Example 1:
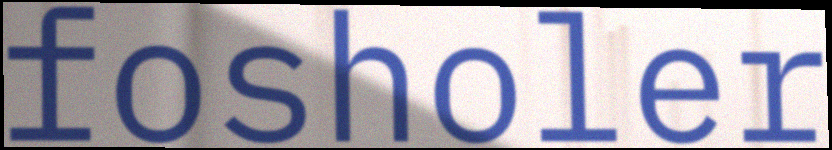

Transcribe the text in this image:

fosholer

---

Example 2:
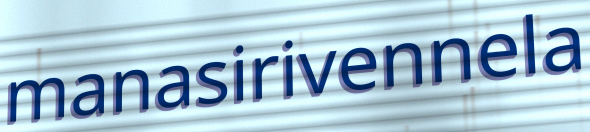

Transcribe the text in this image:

manasirivennela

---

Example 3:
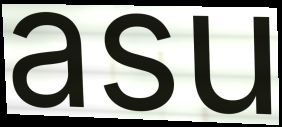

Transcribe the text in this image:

asu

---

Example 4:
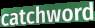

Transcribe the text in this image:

catchword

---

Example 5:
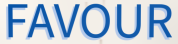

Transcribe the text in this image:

FAVOUR